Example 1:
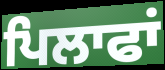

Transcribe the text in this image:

ਪਿਲਾਫਾਂ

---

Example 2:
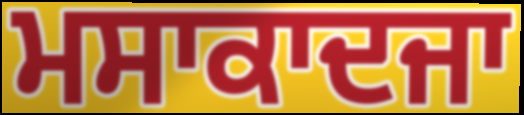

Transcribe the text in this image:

ਮਸਾਕਾਦਜਾ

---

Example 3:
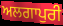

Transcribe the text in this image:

ਅਲਗਾਪੁਰੀ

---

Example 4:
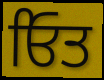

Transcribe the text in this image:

ਓਿਤ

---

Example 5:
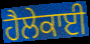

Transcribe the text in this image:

ਹੈਲੇਕਾਈ